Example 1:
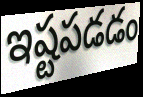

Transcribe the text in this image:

ఇష్టపడడం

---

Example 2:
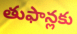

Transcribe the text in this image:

తుఫాన్లకు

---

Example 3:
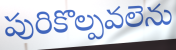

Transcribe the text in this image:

పురికొల్పవలెను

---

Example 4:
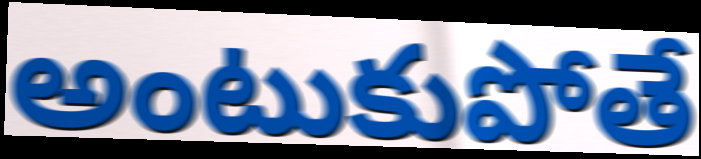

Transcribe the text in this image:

అంటుకుపోతే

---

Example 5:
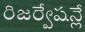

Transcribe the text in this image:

రిజర్వేషన్లే